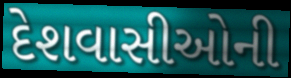
દેશવાસીઓની